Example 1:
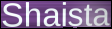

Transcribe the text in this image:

Shaista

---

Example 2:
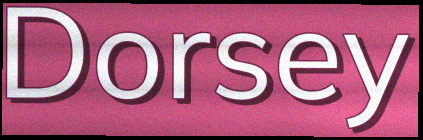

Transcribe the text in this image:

Dorsey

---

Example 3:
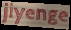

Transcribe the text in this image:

jiyenge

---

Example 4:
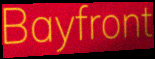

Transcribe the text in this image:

Bayfront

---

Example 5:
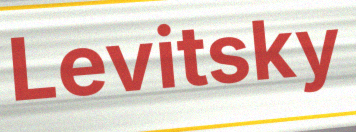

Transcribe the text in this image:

Levitsky